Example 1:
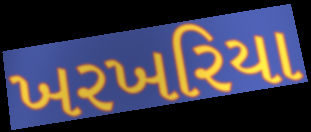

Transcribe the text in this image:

ખરખરિયા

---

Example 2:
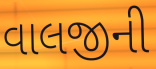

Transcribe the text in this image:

વાલજીની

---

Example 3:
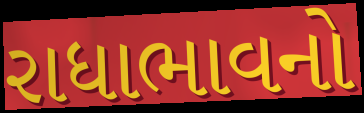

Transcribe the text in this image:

રાધાભાવનો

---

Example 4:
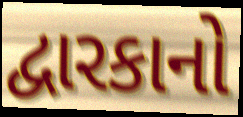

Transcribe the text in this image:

દ્વારકાનો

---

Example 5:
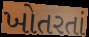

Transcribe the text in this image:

ખોતરતાં